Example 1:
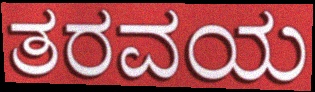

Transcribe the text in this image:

ತರವಯ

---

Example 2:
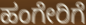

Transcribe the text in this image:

ಹಂಗೇರಿಗೆ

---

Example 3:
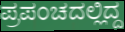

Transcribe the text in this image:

ಪ್ರಪಂಚದಲ್ಲಿದ್ದ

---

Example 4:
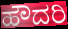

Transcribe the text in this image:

ಹೌದರಿ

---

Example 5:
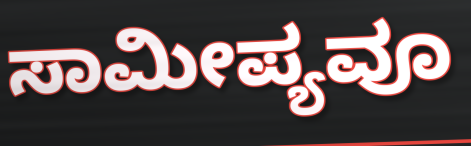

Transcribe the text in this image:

ಸಾಮೀಪ್ಯವೂ